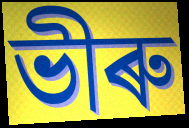
ভীৰু